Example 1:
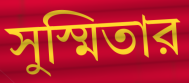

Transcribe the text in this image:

সুস্মিতার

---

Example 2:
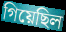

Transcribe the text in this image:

গিয়েছিল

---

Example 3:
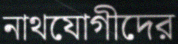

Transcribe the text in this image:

নাথযোগীদের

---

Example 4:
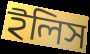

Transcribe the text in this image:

ইলিস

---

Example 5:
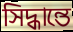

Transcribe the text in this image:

সিদ্ধান্তে